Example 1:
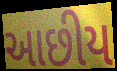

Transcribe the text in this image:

આછીય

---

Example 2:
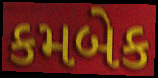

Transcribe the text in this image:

કમબેક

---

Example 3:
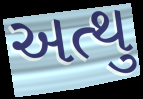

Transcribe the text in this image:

અત્થુ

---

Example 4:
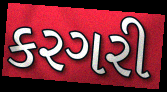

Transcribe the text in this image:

કરગરી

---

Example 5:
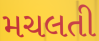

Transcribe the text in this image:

મચલતી